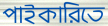
পাইকারিতে